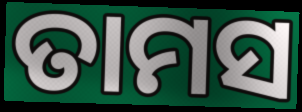
ତାମସ